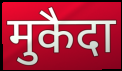
मुकैदा